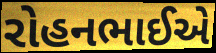
રોહનભાઈએ